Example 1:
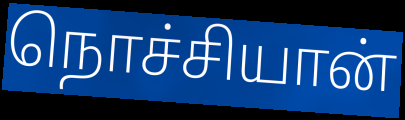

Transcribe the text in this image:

நொச்சியான்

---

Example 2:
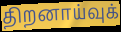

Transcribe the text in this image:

திறனாய்வுக்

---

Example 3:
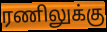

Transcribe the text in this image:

ரணிலுக்கு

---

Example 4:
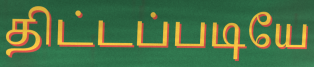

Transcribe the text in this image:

திட்டப்படியே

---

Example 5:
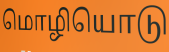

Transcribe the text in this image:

மொழியொடு